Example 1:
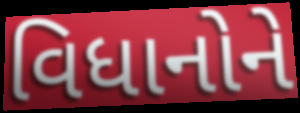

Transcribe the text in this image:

વિધાનોને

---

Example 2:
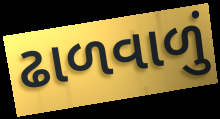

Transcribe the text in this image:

ઢાળવાળું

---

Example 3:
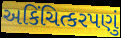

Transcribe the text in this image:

અકિંચિત્કરપણું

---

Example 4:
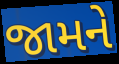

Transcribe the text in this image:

જામને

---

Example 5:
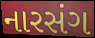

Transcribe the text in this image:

નારસંગ